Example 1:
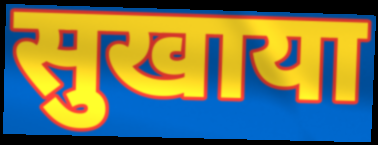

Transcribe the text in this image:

सुखाया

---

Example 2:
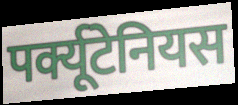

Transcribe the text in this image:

पर्क्यूटेनियस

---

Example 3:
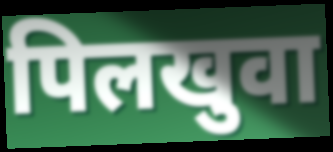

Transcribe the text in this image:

पिलखुवा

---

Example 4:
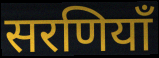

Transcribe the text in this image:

सरणियाँ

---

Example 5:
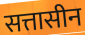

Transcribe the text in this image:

सत्तासीन